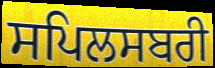
ਸਪਿਲਸਬਰੀ